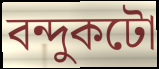
বন্দুকটো